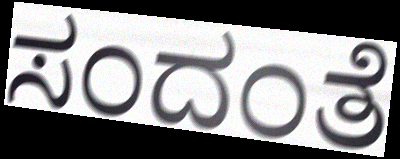
ಸಂದಂತೆ